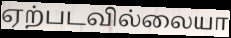
ஏற்படவில்லையா